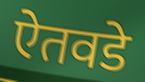
ऐतवडे